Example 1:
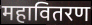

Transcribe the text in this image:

महावितरण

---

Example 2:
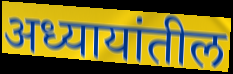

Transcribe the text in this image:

अध्यायांतील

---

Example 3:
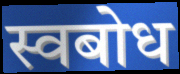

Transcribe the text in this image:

स्वबोध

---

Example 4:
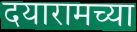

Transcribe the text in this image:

दयारामच्या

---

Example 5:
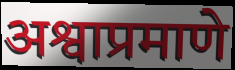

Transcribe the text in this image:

अश्वाप्रमाणे